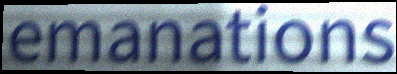
emanations